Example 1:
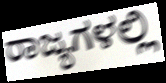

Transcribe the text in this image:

ರಾಜ್ಯಗಳಲ್ಲಿ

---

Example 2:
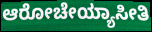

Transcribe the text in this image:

ಆರೋಚೇಯ್ಯಾಸೀತಿ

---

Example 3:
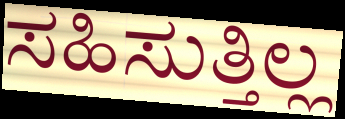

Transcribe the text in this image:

ಸಹಿಸುತ್ತಿಲ್ಲ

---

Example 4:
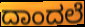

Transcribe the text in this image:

ದಾಂದಲೆ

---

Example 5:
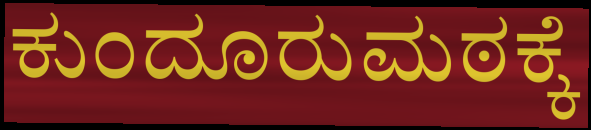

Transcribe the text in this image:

ಕುಂದೂರುಮಠಕ್ಕೆ